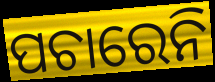
ପଚାରେନି